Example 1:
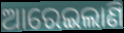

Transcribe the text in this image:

ଆରେଇଲାଣି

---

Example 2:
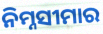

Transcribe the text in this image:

ନିମ୍ନସୀମାର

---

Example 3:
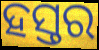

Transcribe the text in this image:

ହସ୍ତର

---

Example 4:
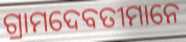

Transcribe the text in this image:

ଗ୍ରାମଦେବତୀମାନେ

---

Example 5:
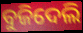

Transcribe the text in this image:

ବୁଜିଦେଲି